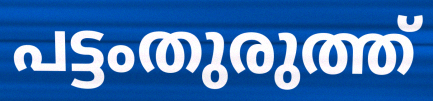
പട്ടംതുരുത്ത്